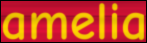
amelia